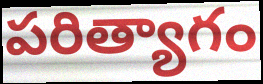
పరిత్యాగం